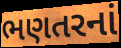
ભણતરનાં